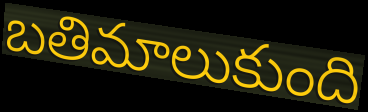
బతిమాలుకుంది